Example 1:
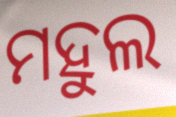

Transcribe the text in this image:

ମହୁଲ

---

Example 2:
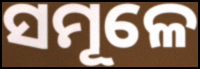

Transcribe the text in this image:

ସମୂଳେ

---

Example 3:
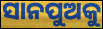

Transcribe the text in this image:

ସାନପୁଅକୁ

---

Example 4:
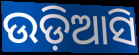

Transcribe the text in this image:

ଉଡ଼ିଆସି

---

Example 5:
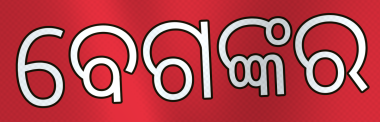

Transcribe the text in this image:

ବେଗଙ୍କର